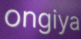
ongiya